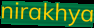
nirakhya